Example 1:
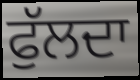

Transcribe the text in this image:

ਫੁੱਲਦਾ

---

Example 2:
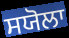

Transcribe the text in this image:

ਸਯੋਲਾ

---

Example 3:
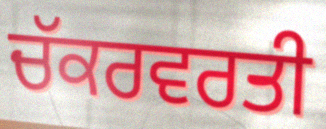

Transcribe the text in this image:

ਚੱਕਰਵਰਤੀ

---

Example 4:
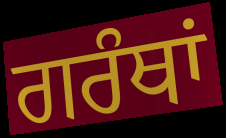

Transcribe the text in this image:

ਗਰੰਥਾਂ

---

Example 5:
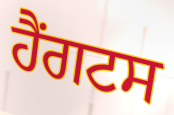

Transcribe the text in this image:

ਹੈਂਗਟਸ